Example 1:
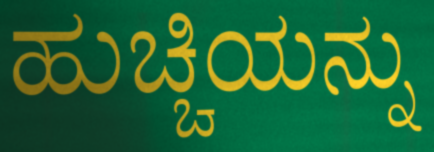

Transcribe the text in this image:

ಹುಚ್ಚಿಯನ್ನು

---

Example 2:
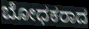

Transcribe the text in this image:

ಬೋಧಕರಾದ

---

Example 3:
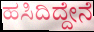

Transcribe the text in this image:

ಹಸಿದಿದ್ದೇನೆ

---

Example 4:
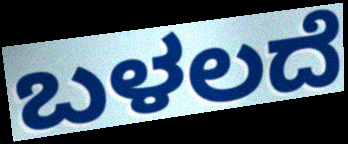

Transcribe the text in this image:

ಬಳಲದೆ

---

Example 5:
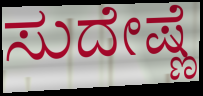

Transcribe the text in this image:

ಸುದೇಷ್ಣೆ